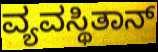
ವ್ಯವಸ್ಥಿತಾನ್